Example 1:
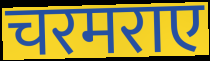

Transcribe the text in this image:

चरमराए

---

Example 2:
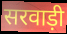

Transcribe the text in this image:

सरवाड़ी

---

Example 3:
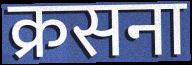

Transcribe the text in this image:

क्रसना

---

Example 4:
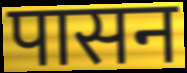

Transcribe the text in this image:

पासन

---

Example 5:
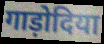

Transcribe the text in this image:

गाड़ोदिया